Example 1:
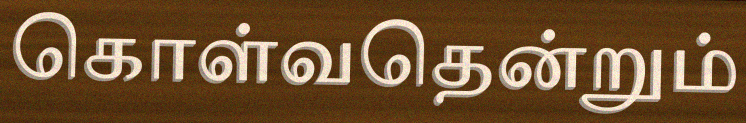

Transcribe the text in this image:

கொள்வதென்றும்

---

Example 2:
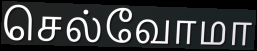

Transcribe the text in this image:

செல்வோமா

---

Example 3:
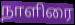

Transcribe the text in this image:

நாளிரை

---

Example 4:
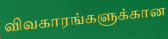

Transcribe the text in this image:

விவகாரங்களுக்கான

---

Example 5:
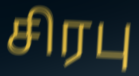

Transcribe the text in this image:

சிரபு